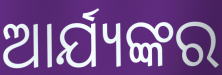
ଆର୍ଯ୍ୟଙ୍କର